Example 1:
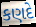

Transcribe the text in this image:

કણદે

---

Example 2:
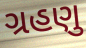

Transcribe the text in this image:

ગ્રહણુ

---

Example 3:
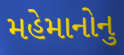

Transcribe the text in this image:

મહેમાનોનુ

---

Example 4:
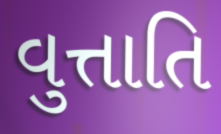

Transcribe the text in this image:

વુત્તાતિ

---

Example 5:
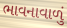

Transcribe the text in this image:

ભાવનાવાળું